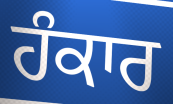
ਹੰਕਾਰ